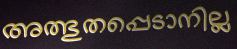
അത്ഭുതപ്പെടാനില്ല